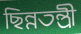
ছিন্নতন্ত্রী